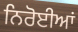
ਨਿਰੋਈਆਂ